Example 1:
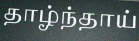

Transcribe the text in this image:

தாழ்ந்தாய்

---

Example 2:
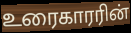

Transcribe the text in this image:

உரைகாரரின்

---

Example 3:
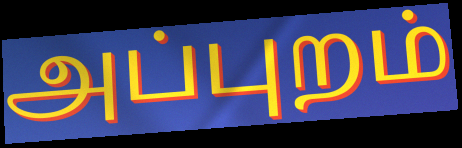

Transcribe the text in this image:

அப்புறம்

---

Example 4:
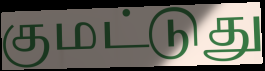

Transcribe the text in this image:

குமட்டுது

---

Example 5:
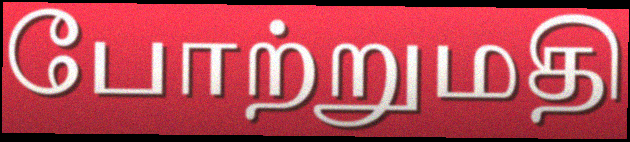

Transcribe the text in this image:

போற்றுமதி